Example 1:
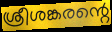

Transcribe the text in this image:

ശ്രീശങ്കരന്റെ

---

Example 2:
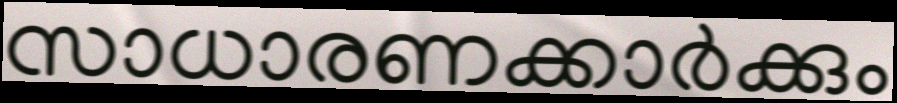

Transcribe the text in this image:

സാധാരണക്കാർക്കും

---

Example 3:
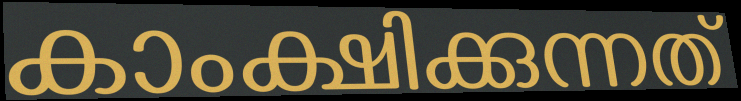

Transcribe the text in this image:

കാംക്ഷിക്കുന്നത്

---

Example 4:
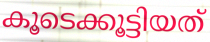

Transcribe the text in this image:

കൂടെക്കൂട്ടിയത്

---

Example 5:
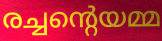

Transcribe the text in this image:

രച്ചന്റെയമ്മ